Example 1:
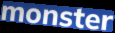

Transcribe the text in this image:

monster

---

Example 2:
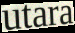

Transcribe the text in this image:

utara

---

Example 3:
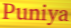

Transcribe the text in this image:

Puniya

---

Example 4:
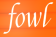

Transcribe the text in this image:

fowl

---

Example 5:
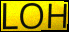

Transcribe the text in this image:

LOH